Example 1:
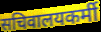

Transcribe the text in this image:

सचिवालयकर्मी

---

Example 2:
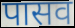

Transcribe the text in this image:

पासव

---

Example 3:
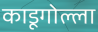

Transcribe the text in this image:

काडूगोल्ला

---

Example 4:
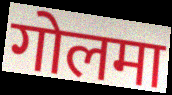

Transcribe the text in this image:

गोलमा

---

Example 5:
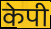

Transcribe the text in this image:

केपी